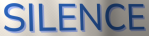
SILENCE